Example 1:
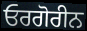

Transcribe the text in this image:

ਓਰਗੋਰੀਨ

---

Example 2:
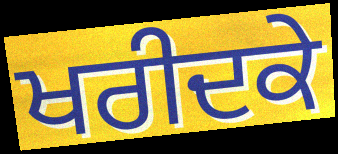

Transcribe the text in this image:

ਖਰੀਦਕੇ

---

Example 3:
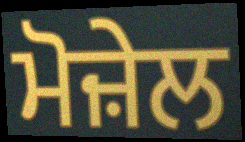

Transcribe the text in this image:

ਮੋਜ਼ੇਲ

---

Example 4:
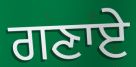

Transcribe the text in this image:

ਗਣਾਏ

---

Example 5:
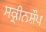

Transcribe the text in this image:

ਸਕ੍ਰੀਨਸ਼ੌਪ